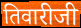
तिवारीजी